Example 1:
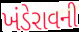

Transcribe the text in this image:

ખંડેરાવની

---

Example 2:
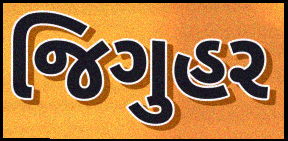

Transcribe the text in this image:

જિગુહર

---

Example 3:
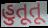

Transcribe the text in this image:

હુતૂતૂ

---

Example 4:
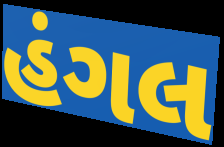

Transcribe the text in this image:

હંગલ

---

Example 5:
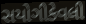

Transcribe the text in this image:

સયોગીકેવલી